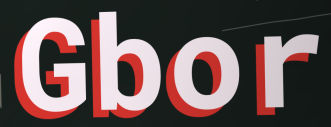
Gbor